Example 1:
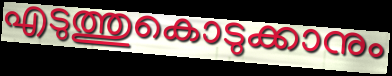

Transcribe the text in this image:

എടുത്തുകൊടുക്കാനും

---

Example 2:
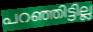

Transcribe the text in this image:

പറഞ്ഞിട്ടില്ല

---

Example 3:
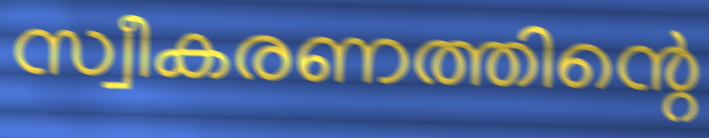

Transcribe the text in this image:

സ്വീകരണത്തിന്റെ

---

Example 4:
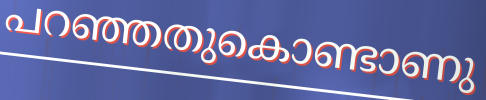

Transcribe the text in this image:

പറഞ്ഞതുകൊണ്ടാണു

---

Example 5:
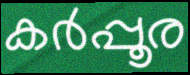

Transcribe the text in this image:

കർപ്പൂര